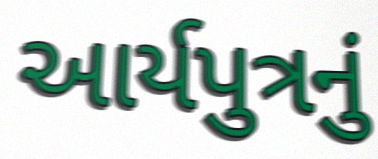
આર્યપુત્રનું